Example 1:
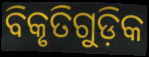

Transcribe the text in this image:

ବିକୃତିଗୁଡ଼ିକ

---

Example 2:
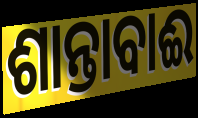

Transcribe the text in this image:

ଶାନ୍ତାବାଈ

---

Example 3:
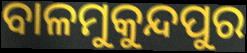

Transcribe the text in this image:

ବାଳମୁକୁନ୍ଦପୁର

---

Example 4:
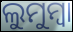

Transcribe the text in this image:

ଲୁମୁମ୍ବା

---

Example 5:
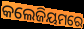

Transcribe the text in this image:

କଲେଜିୟମରେ